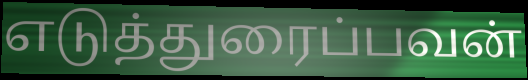
எடுத்துரைப்பவன்